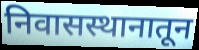
निवासस्थानातून